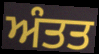
ਅੰਤਤ